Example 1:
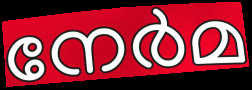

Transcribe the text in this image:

നേർമ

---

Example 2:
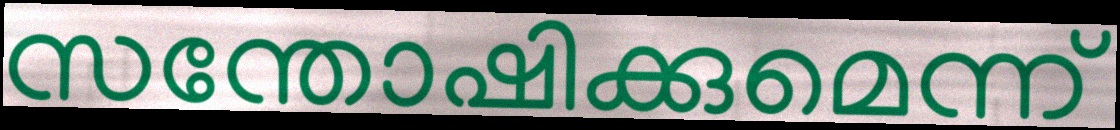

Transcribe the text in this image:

സന്തോഷിക്കുമെന്ന്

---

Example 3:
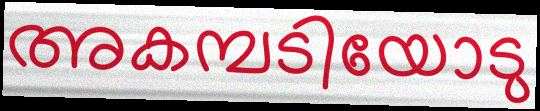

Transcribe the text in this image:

അകമ്പടിയോടു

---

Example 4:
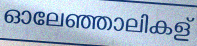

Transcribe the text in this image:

ഓലേഞ്ഞാലികള്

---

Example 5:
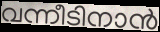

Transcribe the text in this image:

വന്നീടിനാൻ